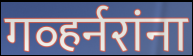
गव्हर्नरांना